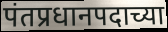
पंतप्रधानपदाच्या